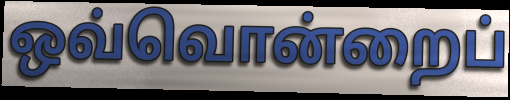
ஒவ்வொன்றைப்